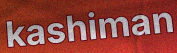
kashiman